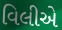
વિલીએ